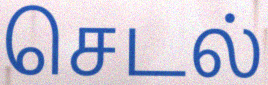
செடல்